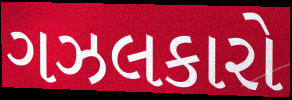
ગઝલકારો